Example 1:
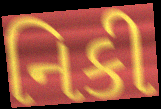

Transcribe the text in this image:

નિકી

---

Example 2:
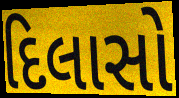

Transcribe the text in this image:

દિલાસો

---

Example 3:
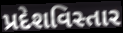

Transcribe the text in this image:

પ્રદેશવિસ્તાર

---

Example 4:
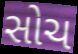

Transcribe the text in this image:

સોચ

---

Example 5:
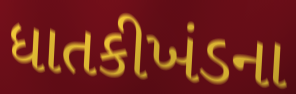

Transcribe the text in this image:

ધાતકીખંડના